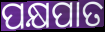
ପକ୍ଷପାତ